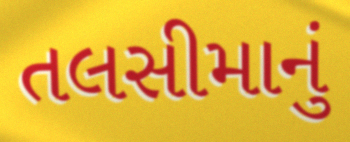
તલસીમાનું